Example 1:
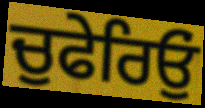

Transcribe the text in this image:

ਚੁਫੇਰਿਓੁਂ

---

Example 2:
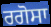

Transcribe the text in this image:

ਰਗੋਸਾ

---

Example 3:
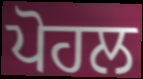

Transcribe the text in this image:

ਪੋਹਲ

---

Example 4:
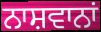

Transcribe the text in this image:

ਨਾਸ਼ਵਾਨਾਂ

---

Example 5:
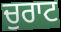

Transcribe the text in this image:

ਚੁਰਾਟ